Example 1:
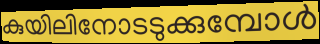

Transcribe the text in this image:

കുയിലിനോടടുക്കുമ്പോൾ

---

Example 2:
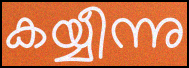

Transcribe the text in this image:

കയ്യീന്നു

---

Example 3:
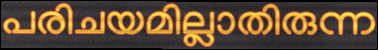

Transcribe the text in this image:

പരിചയമില്ലാതിരുന്ന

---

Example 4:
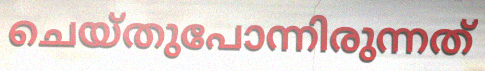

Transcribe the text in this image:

ചെയ്തുപോന്നിരുന്നത്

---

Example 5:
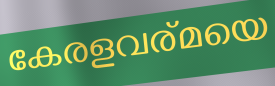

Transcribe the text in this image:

കേരളവര്മയെ